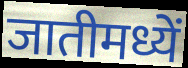
जातीमध्यें